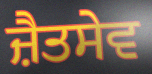
ਜ਼ੈਤਸੇਵ